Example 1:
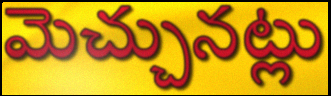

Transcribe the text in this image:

మెచ్చునట్లు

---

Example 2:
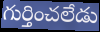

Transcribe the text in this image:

గుర్తించలేడు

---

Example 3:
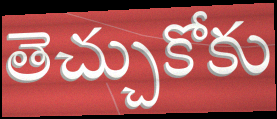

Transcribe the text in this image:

తెచ్చుకోకు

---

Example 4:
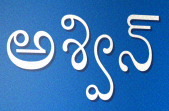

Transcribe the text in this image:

అశ్విన్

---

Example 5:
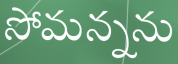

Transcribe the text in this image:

సోమన్నను